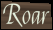
Roar